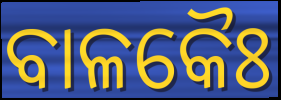
ବାଳକୈଃ